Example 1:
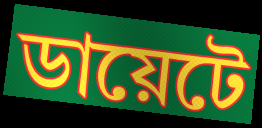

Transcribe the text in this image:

ডায়েটে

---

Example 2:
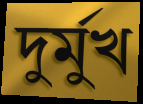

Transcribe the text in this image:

দুর্মুখ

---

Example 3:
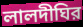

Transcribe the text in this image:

লালদীঘির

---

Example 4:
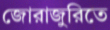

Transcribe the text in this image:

জোরাজুরিতে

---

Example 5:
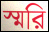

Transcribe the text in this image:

স্মরি